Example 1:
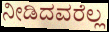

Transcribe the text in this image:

ನೀಡಿದವರೆಲ್ಲ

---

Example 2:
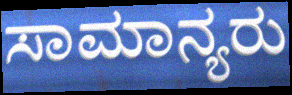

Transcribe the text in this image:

ಸಾಮಾನ್ಯರು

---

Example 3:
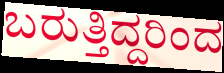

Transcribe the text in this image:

ಬರುತ್ತಿದ್ದರಿಂದ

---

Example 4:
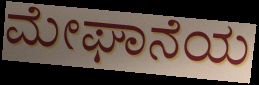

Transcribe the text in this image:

ಮೇಘಾನೆಯ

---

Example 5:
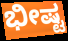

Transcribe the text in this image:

ಭೀಷ್ಟ